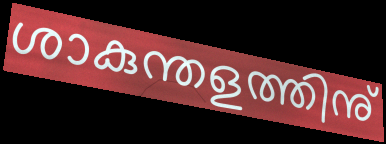
ശാകുന്തളത്തിനു്